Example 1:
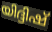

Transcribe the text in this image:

യിദ്ദിഷ്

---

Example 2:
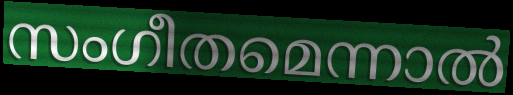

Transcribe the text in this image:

സംഗീതമെന്നാൽ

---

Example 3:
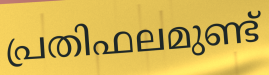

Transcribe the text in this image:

പ്രതിഫലമുണ്ട്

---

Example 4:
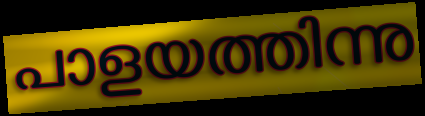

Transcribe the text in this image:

പാളയത്തിന്നു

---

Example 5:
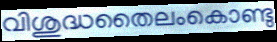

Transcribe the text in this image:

വിശുദ്ധതൈലംകൊണ്ടു